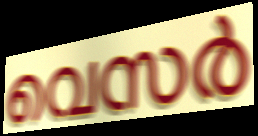
വെസർ